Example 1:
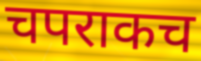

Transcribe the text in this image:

चपराकच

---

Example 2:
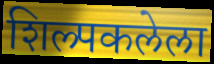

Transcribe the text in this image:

शिल्पकलेला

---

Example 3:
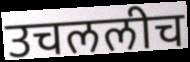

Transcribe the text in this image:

उचललीच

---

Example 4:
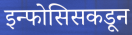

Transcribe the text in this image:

इन्फोसिसकडून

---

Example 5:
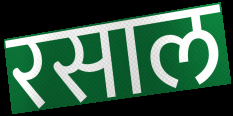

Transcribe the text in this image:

रसाल